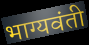
भाग्यवंती